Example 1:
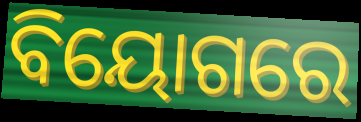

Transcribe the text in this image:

ବିୟୋଗରେ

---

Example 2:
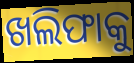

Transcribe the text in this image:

ଖଲିଫାକୁ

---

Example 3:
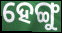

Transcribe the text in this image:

ହେଙ୍ଗୁ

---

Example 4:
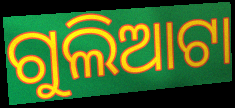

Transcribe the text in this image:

ଗୁଲିଆଟା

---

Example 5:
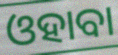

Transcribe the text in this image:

ଓହାବା